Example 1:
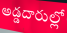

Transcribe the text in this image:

అడ్డదారుల్లో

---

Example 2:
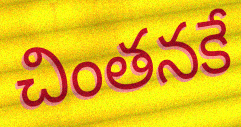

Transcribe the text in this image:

చింతనకే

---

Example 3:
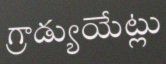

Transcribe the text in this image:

గ్రాడ్యుయేట్లు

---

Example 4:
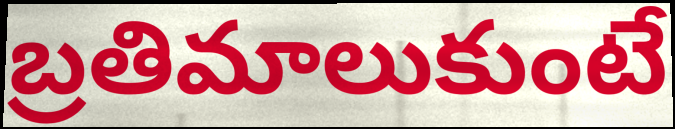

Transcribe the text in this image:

బ్రతిమాలుకుంటే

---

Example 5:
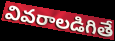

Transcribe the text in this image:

వివరాలడిగితే